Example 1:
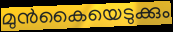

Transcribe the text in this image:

മുൻകൈയെടുക്കും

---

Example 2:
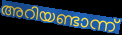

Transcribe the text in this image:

അറിയണ്ടാന്ന്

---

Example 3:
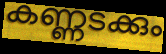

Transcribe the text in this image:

കണ്ണടക്കും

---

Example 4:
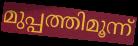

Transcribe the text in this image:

മുപ്പത്തിമൂന്ന്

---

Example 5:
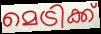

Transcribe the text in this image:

മെട്രിക്ക്